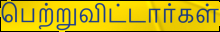
பெற்றுவிட்டார்கள்